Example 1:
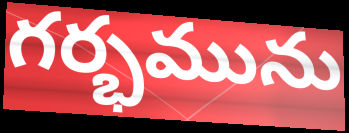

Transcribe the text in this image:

గర్భమును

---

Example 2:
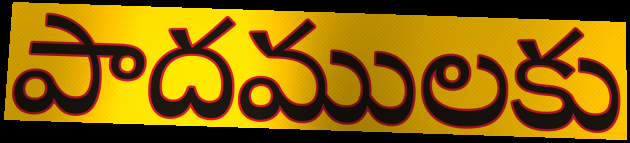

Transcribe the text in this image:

పాదములకు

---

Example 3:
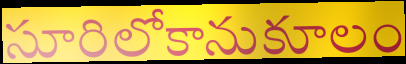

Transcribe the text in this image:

సూరిలోకానుకూలం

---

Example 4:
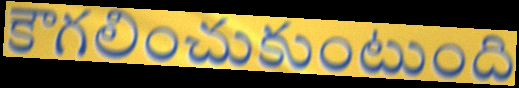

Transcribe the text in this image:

కౌగలించుకుంటుంది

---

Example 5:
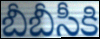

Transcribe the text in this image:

బీబీసీకి